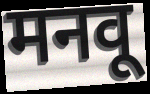
मनवू